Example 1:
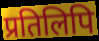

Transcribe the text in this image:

प्रतिलिपि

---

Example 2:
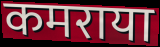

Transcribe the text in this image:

कमराया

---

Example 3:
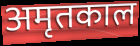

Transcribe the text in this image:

अमृतकाल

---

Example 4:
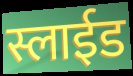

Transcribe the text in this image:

स्लाईड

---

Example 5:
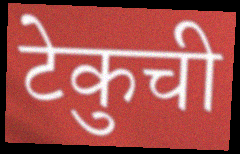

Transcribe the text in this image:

टेकुची